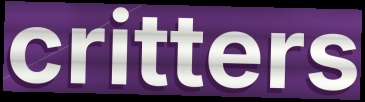
critters